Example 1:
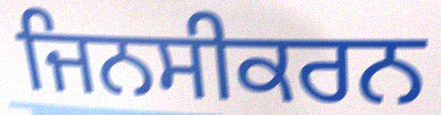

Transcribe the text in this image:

ਜਿਨਸੀਕਰਨ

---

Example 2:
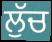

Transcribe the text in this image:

ਲੁੱਚ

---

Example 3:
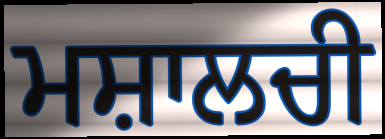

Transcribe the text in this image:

ਮਸ਼ਾਲਚੀ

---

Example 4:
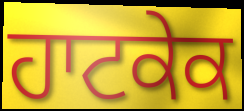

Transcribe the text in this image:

ਹਾਟਕੇਕ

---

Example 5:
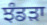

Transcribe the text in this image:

ਝੰਡੜਾ